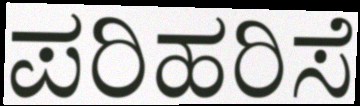
ಪರಿಹರಿಸೆ